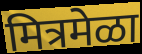
मित्रमेळा